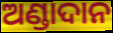
ଅଣ୍ଡାଦାନ